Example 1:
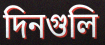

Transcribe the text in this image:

দিনগুলি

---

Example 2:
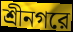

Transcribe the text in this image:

শ্রীনগরে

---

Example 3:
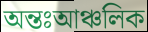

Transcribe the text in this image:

অন্তঃআঞ্চলিক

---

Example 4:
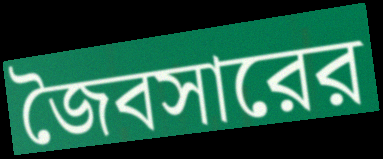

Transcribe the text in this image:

জৈবসারের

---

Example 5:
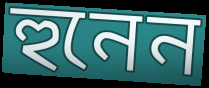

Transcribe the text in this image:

হুনেন